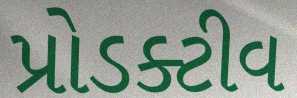
પ્રોડક્ટીવ